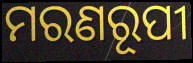
ମରଣରୂପୀ